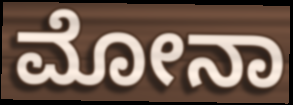
ಮೋನಾ